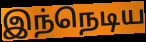
இந்நெடிய